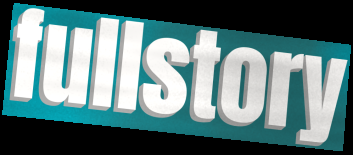
fullstory